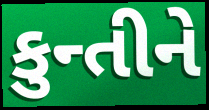
કુન્તીને